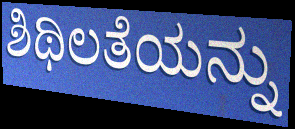
ಶಿಥಿಲತೆಯನ್ನು